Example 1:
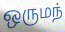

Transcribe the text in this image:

ஒருமந்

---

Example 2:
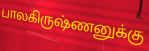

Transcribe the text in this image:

பாலகிருஷ்ணனுக்கு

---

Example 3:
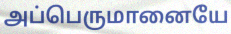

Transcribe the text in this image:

அப்பெருமானையே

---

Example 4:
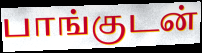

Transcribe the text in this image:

பாங்குடன்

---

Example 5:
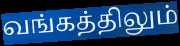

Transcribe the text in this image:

வங்கத்திலும்